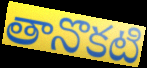
తానొకటి